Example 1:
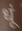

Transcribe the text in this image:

धूं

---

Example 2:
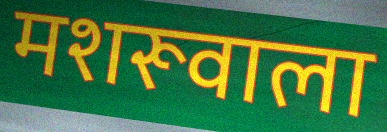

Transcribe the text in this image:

मशरूवाला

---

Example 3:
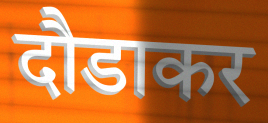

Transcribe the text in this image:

दौडाकर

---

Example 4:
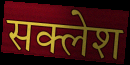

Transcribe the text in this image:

सक्लेश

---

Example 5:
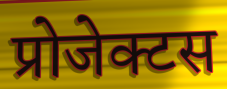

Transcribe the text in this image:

प्रोजेक्टस